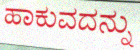
ಹಾಕುವದನ್ನು